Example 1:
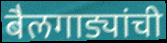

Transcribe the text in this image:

बैलगाड्यांची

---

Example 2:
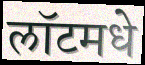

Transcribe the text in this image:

लॉटमधे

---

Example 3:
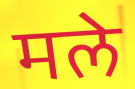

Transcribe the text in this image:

मले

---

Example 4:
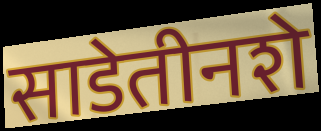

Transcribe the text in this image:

साडेतीनशे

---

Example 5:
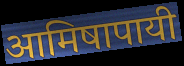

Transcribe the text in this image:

आमिषापायी